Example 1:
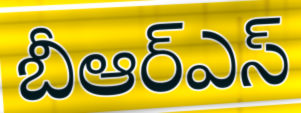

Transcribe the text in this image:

బీఆర్ఎస్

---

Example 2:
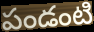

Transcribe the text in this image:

పండంటి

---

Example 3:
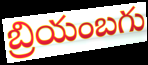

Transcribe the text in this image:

బ్రియంబగు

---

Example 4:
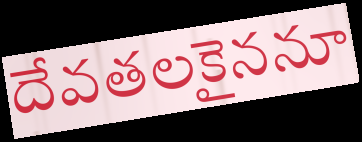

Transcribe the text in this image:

దేవతలకైననూ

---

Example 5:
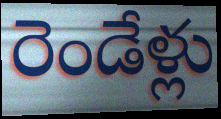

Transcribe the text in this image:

రెండేళ్లు